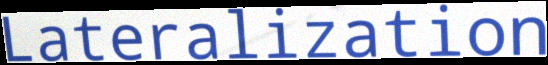
Lateralization